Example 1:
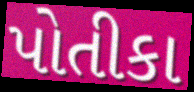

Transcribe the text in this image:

પોતીકા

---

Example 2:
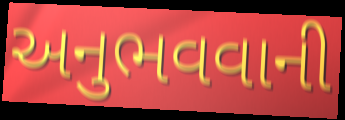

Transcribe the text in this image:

અનુભવવાની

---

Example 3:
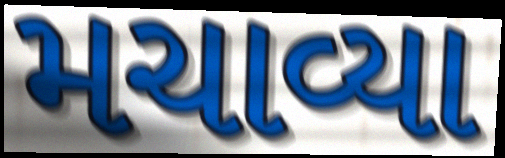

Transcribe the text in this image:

મચાવ્યા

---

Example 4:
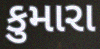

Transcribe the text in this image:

કુમારા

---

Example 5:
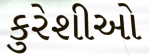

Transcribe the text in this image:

કુરેશીઓ